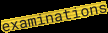
examinations